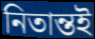
নিতান্তই